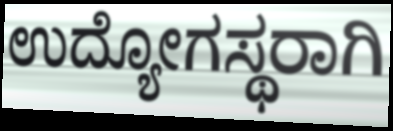
ಉದ್ಯೋಗಸ್ಥರಾಗಿ